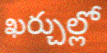
ఖర్చుల్లో